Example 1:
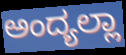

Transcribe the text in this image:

ಅಂದ್ಯಲ್ಲಾ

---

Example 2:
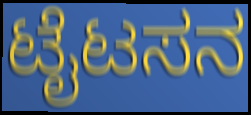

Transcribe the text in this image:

ಟೈಟಸನ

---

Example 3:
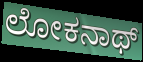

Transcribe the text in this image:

ಲೋಕನಾಥ್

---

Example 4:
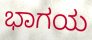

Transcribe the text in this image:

ಭಾಗಯ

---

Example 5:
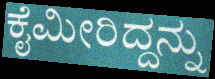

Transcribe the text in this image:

ಕೈಮೀರಿದ್ದನ್ನು